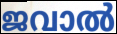
ജവാൽ